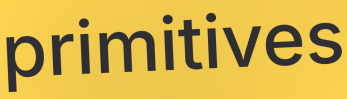
primitives